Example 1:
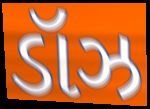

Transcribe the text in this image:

ડૉઝ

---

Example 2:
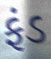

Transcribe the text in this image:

ફંડ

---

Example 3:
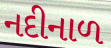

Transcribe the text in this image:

નદીનાળ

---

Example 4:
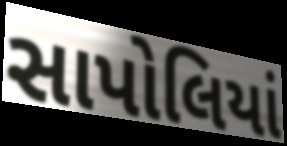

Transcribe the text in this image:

સાપોલિયાં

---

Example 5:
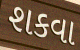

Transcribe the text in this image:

શકવા